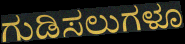
ಗುಡಿಸಲುಗಳೂ